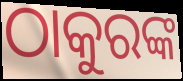
ଠାକୁରଙ୍କ